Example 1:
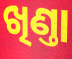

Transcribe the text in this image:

ଖିଣ୍ତା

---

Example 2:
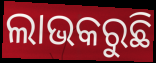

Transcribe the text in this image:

ଲାଭକରୁଛି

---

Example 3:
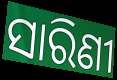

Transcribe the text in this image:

ସାରିଣୀ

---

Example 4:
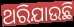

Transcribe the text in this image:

ଥରିଯାଉଛି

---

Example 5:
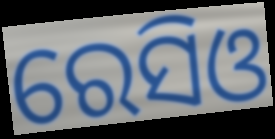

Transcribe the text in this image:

ରେସିଓ